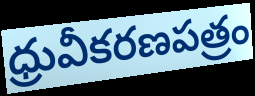
ధ్రువీకరణపత్రం